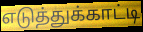
எடுத்துக்காட்டி